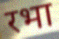
रभा